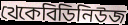
থেকেবিডিনিউজ